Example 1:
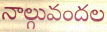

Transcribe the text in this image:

నాల్గువందల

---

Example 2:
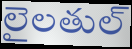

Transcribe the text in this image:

లైలతుల్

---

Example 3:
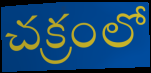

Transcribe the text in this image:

చక్రంలో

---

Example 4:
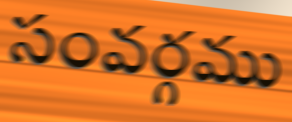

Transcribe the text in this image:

సంవర్గము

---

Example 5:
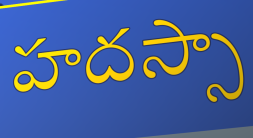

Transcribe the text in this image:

హదస్సా